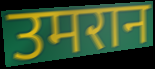
उमरान